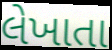
લેખાતા